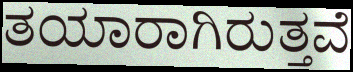
ತಯಾರಾಗಿರುತ್ತವೆ